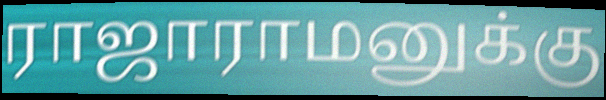
ராஜாராமனுக்கு